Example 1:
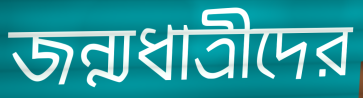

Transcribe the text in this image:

জন্মধাত্রীদের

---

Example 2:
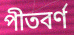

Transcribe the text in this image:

পীতবর্ণ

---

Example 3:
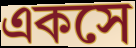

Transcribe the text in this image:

একসে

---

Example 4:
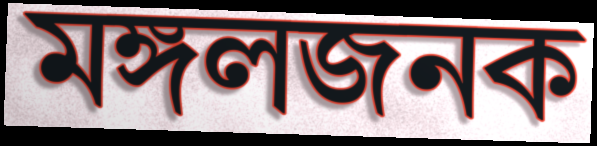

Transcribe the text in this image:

মঙ্গলজনক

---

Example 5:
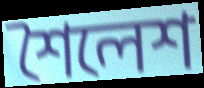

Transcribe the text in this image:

শৈলেশ